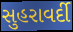
સુહરાવર્દી